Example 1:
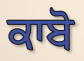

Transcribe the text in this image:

ਕਾਬੋ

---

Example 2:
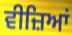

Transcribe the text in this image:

ਵੀਜ਼ਿਆਂ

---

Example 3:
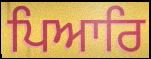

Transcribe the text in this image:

ਪਿਆਰਿ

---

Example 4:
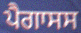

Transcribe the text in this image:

ਪੈਗਾਸਸ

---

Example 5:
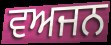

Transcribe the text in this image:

ਵਅਜਨ